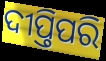
ଦୀପ୍ତିପରି